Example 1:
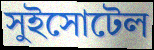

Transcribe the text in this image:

সুইসোটেল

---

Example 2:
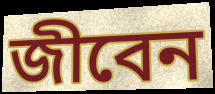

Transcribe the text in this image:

জীবেন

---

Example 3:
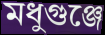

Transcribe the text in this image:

মধুগুঞ্জে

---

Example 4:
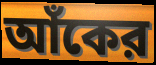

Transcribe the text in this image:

আঁকের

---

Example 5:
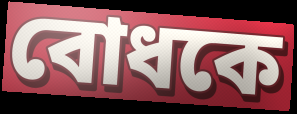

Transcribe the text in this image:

বোধকে